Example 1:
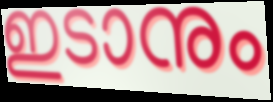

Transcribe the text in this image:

ഇടാനും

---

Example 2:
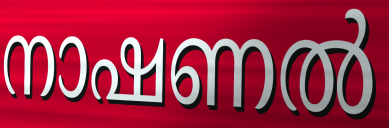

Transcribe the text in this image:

നാഷണൽ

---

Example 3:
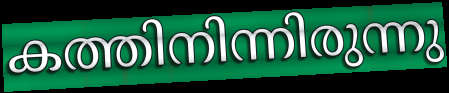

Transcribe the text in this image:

കത്തിനിന്നിരുന്നു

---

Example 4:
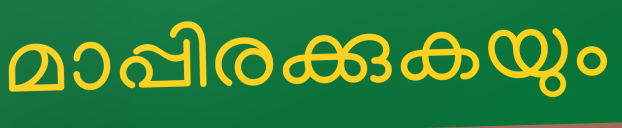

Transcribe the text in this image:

മാപ്പിരക്കുകയും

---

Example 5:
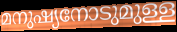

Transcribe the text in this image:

മനുഷ്യനോടുമുള്ള